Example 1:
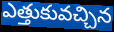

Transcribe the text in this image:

ఎత్తుకువచ్చిన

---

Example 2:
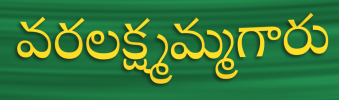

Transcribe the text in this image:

వరలక్ష్మమ్మగారు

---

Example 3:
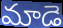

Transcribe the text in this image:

మాడె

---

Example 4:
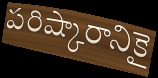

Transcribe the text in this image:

పరిష్కారానికై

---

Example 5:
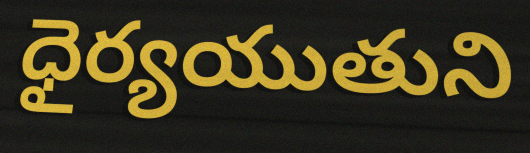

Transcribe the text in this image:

ధైర్యయుతుని